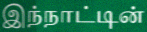
இந்நாட்டின்